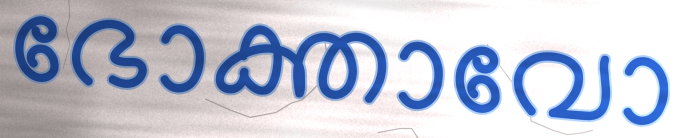
ഭോക്താവോ